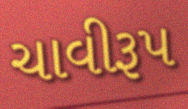
ચાવીરૂપ